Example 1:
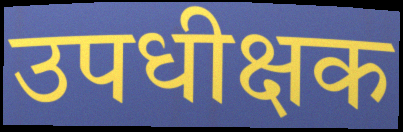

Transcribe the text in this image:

उपधीक्षक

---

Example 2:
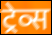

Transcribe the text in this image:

ट्रेव्स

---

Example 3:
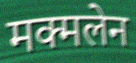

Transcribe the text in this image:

मक्मलेन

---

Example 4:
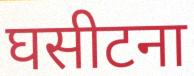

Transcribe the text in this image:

घसीटना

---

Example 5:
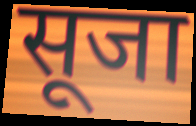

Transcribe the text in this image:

सूजा